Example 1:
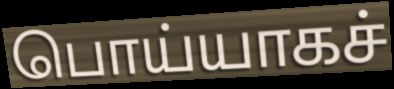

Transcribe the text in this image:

பொய்யாகச்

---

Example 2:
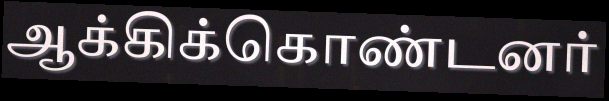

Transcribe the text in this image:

ஆக்கிக்கொண்டனர்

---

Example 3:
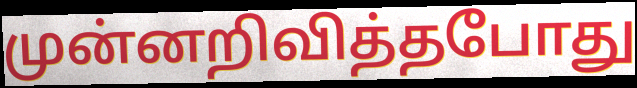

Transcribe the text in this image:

முன்னறிவித்தபோது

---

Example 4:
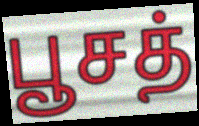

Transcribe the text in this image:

பூசத்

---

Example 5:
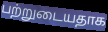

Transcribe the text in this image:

பற்றுடையதாக